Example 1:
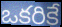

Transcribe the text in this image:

ఒకరికే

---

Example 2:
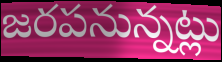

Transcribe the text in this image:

జరపనున్నట్లు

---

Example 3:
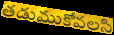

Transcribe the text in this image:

తడుముకోవలసి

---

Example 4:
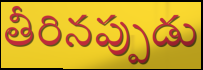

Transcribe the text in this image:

తీరినప్పుడు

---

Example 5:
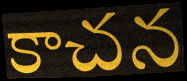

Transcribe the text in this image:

కాచన